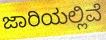
ಜಾರಿಯಲ್ಲಿವೆ